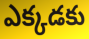
ఎక్కడకు